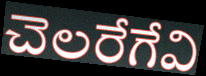
చెలరేగేవి